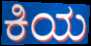
ಕಿಯ